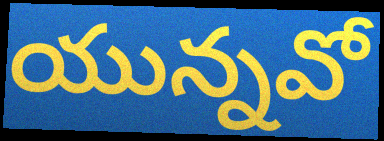
యున్నవో